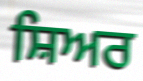
ਸ਼ਿਅਰ